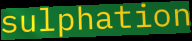
sulphation